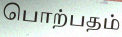
பொற்பதம்